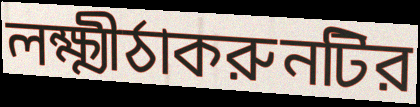
লক্ষ্মীঠাকরুনটির